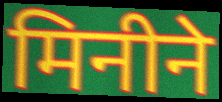
मिनीने